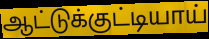
ஆட்டுக்குட்டியாய்